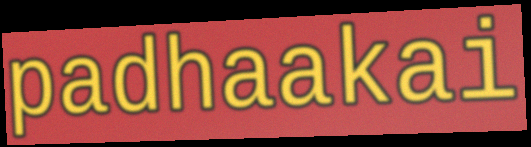
padhaakai